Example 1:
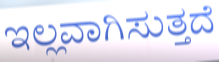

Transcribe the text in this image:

ಇಲ್ಲವಾಗಿಸುತ್ತದೆ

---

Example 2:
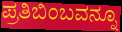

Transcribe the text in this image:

ಪ್ರತಿಬಿಂಬವನ್ನೂ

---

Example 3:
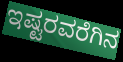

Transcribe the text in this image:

ಇಷ್ಟರವರೆಗಿನ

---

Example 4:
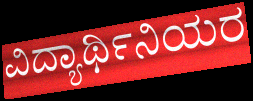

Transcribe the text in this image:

ವಿದ್ಯಾರ್ಥಿನಿಯರ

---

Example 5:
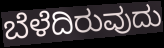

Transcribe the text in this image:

ಬೆಳೆದಿರುವುದು